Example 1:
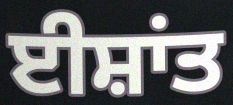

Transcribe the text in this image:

ਈਸ਼ਾਂਤ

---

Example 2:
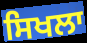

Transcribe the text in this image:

ਸਿਖਲਾ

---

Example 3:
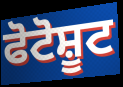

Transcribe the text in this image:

ਫੋਟੋਸ਼ੂਟ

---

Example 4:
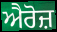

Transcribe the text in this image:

ਐਰੋਜ਼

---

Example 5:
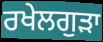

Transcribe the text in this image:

ਰਖੇਲਗੁੜਾ